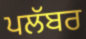
ਪਲੱਬਰ